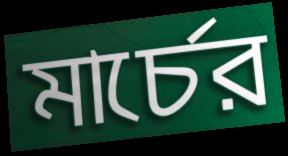
মার্চের